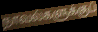
நாவல்களுக்குப்